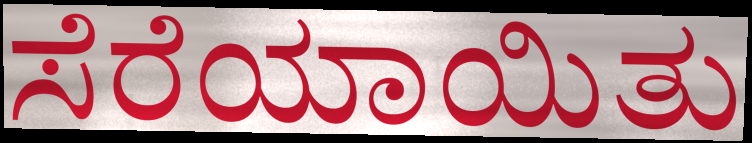
ಸೆರೆಯಾಯಿತು